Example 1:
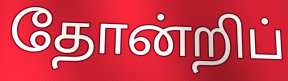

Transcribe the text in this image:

தோன்றிப்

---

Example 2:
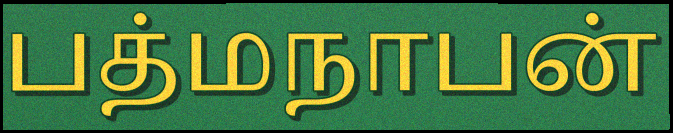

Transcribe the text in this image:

பத்மநாபன்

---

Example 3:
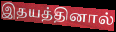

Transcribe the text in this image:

இதயத்தினால்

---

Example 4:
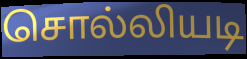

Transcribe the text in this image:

சொல்லியடி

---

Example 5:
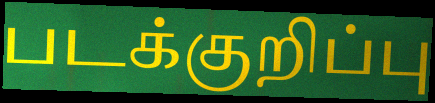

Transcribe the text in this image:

படக்குறிப்பு